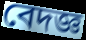
বেদজ্ঞ